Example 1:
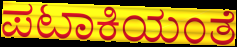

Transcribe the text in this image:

ಪಟಾಕಿಯಂತೆ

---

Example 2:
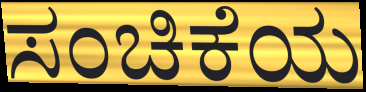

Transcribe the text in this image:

ಸಂಚಿಕೆಯ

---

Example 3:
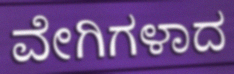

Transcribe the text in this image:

ವೇಗಿಗಳಾದ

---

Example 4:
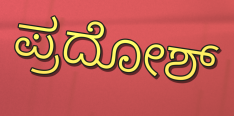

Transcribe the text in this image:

ಪ್ರದೋಶ್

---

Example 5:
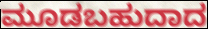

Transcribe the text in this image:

ಮೂಡಬಹುದಾದ